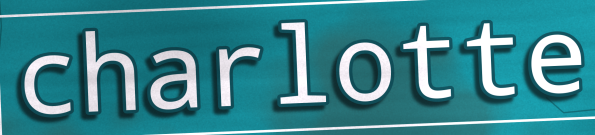
charlotte